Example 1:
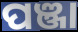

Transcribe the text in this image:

ପଞ୍ଜା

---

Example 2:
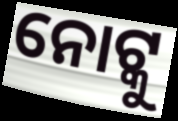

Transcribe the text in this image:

ନୋଟ୍କୁ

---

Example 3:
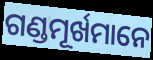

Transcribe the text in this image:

ଗଣ୍ଡମୂର୍ଖମାନେ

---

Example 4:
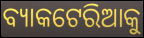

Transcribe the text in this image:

ବ୍ୟାକଟେରିଆକୁ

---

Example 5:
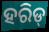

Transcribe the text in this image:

ହରିଡ୍